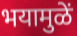
भयामुळें